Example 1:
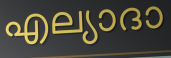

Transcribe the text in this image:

എല്യാദാ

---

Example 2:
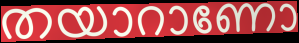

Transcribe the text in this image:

തയാറാണോ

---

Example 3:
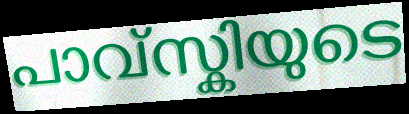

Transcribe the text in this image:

പാവ്സ്കിയുടെ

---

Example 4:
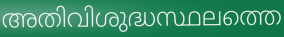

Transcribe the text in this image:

അതിവിശുദ്ധസ്ഥലത്തെ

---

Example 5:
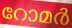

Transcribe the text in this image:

റോമർ